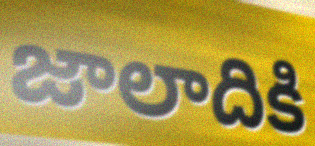
జాలాదికి